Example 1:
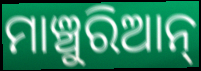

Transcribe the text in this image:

ମାଞ୍ଚୁରିଆନ୍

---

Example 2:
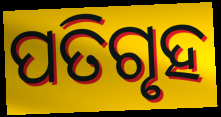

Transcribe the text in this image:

ପତିଗୃହ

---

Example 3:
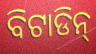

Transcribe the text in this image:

ବିଟାଡିନ୍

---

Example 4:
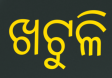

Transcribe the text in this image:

ଖଟୁଳି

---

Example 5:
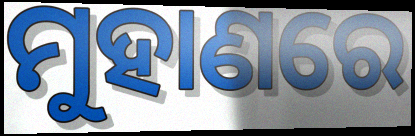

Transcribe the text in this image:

ମୁହାଣରେ